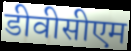
डीवीसीएम